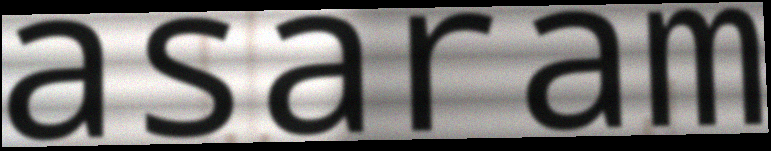
asaram